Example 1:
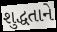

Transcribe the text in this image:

શુદ્ધતાને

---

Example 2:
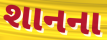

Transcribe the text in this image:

શાનના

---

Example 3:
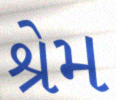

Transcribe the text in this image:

શ્રેમ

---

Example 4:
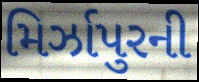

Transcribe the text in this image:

મિર્ઝાપુરની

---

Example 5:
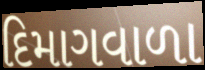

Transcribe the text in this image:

દિમાગવાળા